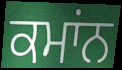
ਕਮਾਂਨ